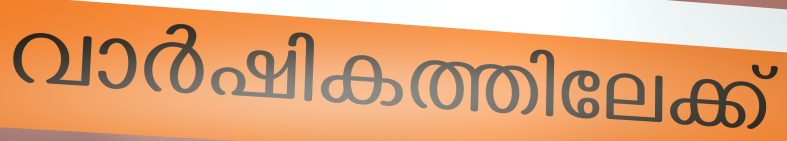
വാർഷികത്തിലേക്ക്